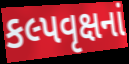
કલ્પવૃક્ષનાં